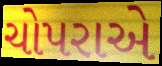
ચોપરાએ